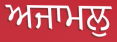
ਅਜਾਮਲੁ